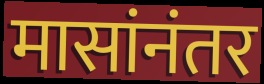
मासांनंतर